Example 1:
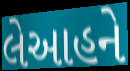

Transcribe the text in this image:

લેઆહને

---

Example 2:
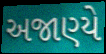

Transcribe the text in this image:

અજાણ્યે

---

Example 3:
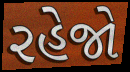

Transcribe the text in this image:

રહેજો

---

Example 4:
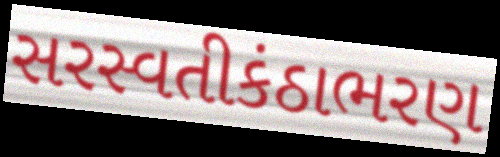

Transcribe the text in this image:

સરસ્વતીકંઠાભરણ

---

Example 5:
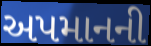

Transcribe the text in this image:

અપમાનની